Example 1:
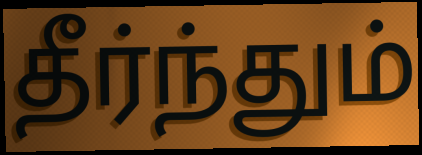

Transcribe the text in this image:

தீர்ந்தும்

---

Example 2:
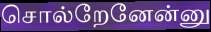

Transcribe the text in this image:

சொல்றேனேன்னு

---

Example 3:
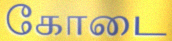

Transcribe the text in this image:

கோடை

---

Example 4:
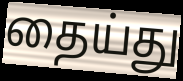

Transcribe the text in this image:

தைய்து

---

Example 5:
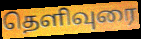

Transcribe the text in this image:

தெளிவுரை